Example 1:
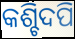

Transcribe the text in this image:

କଶ୍ଚିଦପି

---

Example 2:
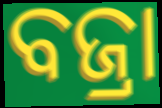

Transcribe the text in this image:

ବଜ୍ରା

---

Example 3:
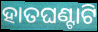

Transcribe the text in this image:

ହାତଘଣ୍ଟାଟି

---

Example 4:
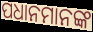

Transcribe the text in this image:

ପଧାନମାନଙ୍କ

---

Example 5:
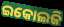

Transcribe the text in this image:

ଇକୋଲଜି